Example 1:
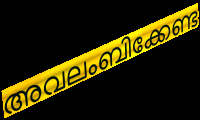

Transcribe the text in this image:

അവലംബിക്കേണ്ട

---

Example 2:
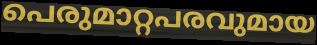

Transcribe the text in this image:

പെരുമാറ്റപരവുമായ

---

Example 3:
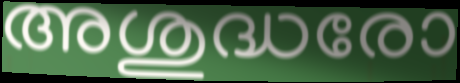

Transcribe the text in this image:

അശുദ്ധരോ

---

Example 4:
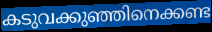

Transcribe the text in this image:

കടുവക്കുഞ്ഞിനെക്കണ്ട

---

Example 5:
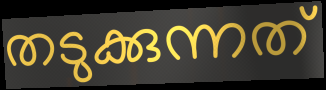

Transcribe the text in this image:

തടുക്കുന്നത്